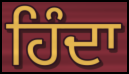
ਹਿੰਦਾ